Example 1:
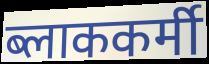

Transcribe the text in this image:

ब्लाककर्मी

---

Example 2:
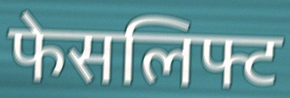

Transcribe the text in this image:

फेसलिफ्ट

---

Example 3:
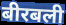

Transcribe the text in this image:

बीरबली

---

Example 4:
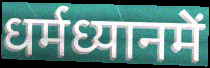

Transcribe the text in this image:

धर्मध्यानमें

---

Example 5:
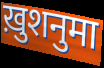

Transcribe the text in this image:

ख़ुशनुमा